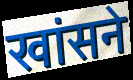
खांसने